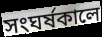
সংঘর্ষকালে